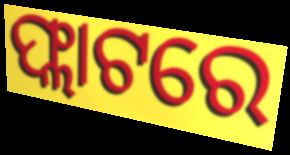
ଫ୍ଲାଟରେ